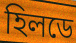
হিলডে